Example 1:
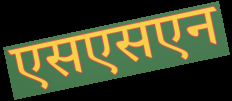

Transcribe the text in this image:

एसएसएन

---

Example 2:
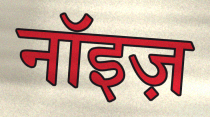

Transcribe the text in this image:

नॉइज़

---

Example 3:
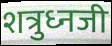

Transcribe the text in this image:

शत्रुध्नजी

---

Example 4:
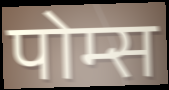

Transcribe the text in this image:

पोम्स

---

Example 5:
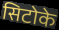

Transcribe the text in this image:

सिटोके